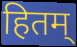
हितम्